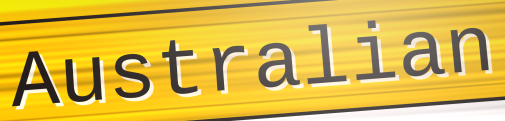
Australian